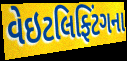
વેઇટલિફ્ટિંગના